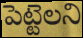
పెట్టెలని